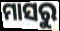
ମାସରୁ